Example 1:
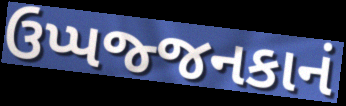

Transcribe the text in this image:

ઉપ્પજ્જનકાનં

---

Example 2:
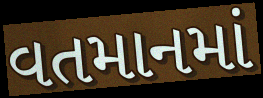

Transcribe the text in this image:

વતમાનમાં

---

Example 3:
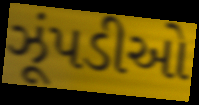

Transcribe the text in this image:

ઝૂંપડીઓ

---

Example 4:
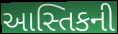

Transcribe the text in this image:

આસ્તિકની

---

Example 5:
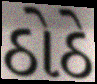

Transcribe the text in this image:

ઠોઠે